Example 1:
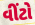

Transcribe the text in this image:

વીંટો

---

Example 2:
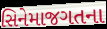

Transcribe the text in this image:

સિનેમાજગતના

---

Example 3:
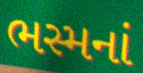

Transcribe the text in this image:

ભસ્મનાં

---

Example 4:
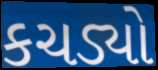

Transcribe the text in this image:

કચડ્યો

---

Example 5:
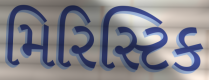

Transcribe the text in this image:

મિરિસ્ટિક